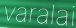
varalai